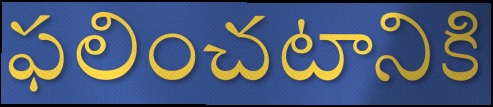
ఫలించటానికి